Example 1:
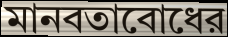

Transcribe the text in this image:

মানবতাবোধের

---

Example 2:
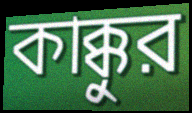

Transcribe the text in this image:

কাক্কুর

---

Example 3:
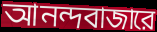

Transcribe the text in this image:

আনন্দবাজারে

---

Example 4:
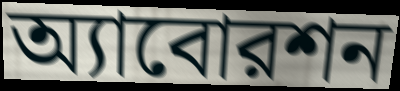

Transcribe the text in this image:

অ্যাবোরশন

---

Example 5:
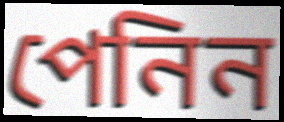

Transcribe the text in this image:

পেনিন